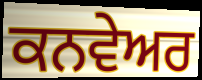
ਕਨਵੇਅਰ